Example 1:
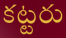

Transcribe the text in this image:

కట్టరు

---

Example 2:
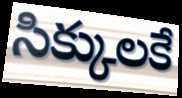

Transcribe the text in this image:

సిక్కులకే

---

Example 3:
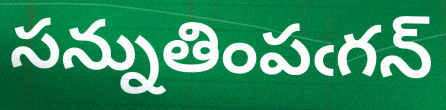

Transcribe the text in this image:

సన్నుతింపఁగన్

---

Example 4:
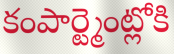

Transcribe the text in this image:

కంపార్ట్మెంట్లోకి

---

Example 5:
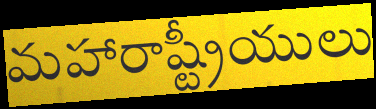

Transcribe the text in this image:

మహారాష్ట్రీయులు